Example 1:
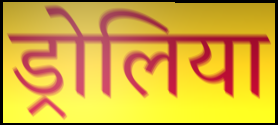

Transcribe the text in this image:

ड्रोलिया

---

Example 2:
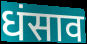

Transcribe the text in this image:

धंसाव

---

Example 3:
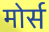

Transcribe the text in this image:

मोर्स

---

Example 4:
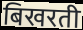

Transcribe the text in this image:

बिखरती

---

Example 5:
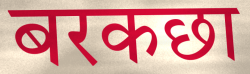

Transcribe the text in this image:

बरकछा